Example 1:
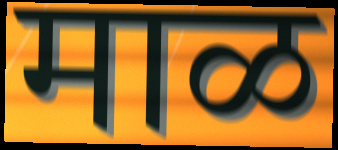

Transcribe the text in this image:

माळ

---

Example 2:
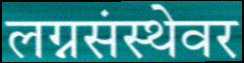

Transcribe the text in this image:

लग्नसंस्थेवर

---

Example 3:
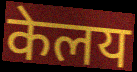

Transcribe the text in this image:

केलय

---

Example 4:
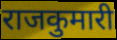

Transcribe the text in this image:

राजकुमारी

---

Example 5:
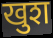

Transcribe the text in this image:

खुश